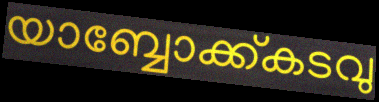
യാബ്ബോക്ക്കടവു